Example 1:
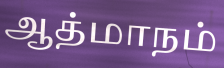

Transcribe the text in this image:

ஆத்மாநம்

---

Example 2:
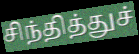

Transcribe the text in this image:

சிந்தித்துச்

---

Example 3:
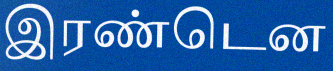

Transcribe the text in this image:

இரண்டென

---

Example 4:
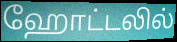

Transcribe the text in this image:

ஹோட்டலில்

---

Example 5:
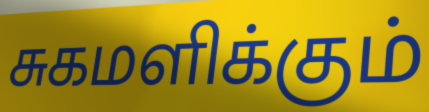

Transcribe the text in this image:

சுகமளிக்கும்